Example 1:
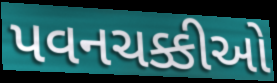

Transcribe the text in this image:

પવનચક્કીઓ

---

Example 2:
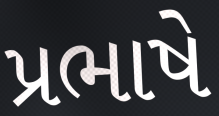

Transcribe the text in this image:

પ્રભાષે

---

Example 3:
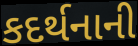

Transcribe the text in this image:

કદર્થનાની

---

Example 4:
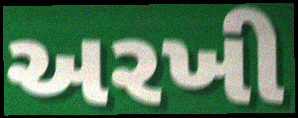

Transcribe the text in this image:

અરખી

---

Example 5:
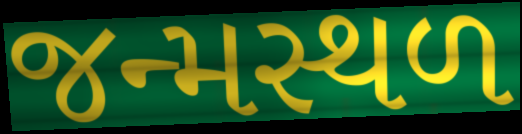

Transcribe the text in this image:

જન્મસ્થળ